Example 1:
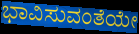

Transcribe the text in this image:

ಭಾವಿಸುವಂತೆಯೇ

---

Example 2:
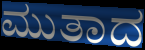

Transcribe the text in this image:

ಮುತಾದ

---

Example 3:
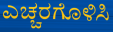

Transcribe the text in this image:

ಎಚ್ಚರಗೊಳಿಸಿ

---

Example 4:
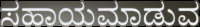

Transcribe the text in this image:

ಸಹಾಯಮಾಡುವ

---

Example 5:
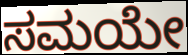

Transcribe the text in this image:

ಸಮಯೇ